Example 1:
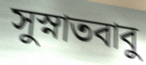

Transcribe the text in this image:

সুস্নাতবাবু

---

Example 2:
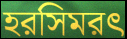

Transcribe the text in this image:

হরসিমরৎ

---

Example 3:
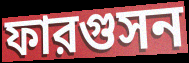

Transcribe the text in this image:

ফারগুসন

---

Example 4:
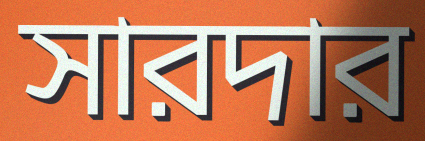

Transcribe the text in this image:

সারদার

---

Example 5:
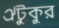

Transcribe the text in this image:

ঐটুকুর